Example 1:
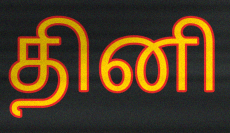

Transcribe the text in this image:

தினி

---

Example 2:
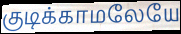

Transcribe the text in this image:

குடிக்காமலேயே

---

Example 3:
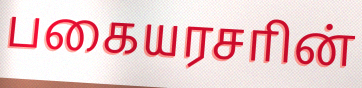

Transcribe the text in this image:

பகையரசரின்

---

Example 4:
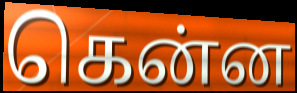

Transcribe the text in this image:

கென்ன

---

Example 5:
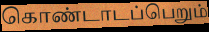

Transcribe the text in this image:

கொண்டாடப்பெறும்